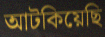
আটকিয়েছি